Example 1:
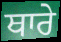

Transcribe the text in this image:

ਥਾਰੇ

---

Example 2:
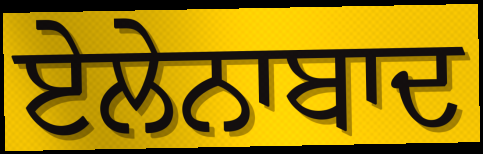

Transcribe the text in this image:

ਏਲੇਨਾਬਾਦ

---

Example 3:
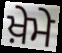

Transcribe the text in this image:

ਖ਼ੇਮੇ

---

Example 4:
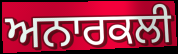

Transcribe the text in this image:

ਅਨਾਰਕਲੀ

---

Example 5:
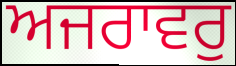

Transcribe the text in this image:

ਅਜਰਾਵਰੁ